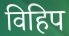
विहिप